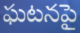
ఘటనపై